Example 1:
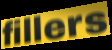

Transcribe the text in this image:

fillers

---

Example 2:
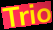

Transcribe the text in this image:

Trio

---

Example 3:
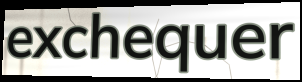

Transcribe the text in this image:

exchequer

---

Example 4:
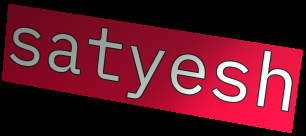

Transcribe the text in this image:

satyesh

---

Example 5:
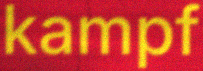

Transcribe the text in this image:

kampf